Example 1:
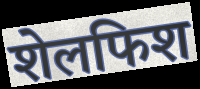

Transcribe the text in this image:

शेलफिश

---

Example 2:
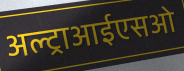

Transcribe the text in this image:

अल्ट्राआईएसओ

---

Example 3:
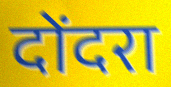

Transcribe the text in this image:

दोंदरा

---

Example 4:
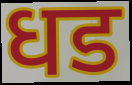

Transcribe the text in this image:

धड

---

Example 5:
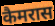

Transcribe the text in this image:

कैमरास